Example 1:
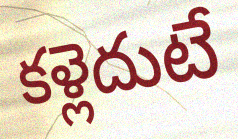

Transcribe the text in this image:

కళ్లెదుటే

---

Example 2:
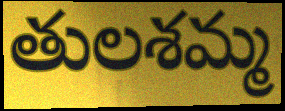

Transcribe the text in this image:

తులశమ్మ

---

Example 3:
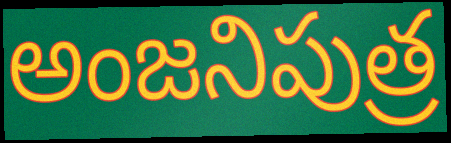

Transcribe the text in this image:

అంజనిపుత్ర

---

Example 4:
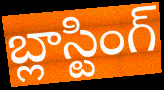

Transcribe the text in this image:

బ్లాస్టింగ్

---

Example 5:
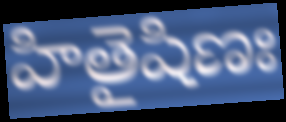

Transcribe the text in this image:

హితైషిణః